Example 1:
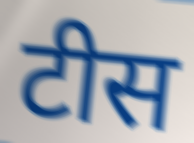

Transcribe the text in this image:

टीस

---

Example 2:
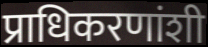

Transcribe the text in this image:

प्राधिकरणांशी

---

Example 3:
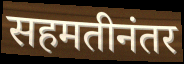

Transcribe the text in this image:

सहमतीनंतर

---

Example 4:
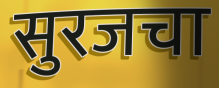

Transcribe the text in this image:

सुरजचा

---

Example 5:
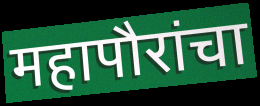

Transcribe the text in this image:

महापौरांचा